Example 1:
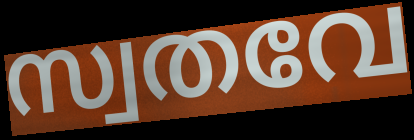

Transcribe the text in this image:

സ്വതവേ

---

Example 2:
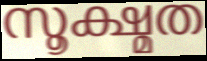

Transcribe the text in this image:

സൂക്ഷ്മത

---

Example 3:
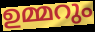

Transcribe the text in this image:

ഉമ്മറും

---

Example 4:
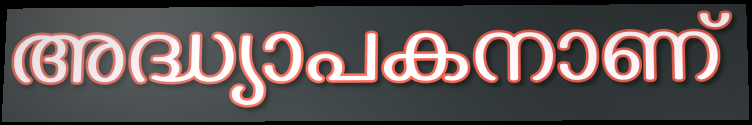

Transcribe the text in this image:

അദ്ധ്യാപകനാണ്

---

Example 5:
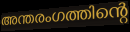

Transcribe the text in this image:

അന്തരംഗത്തിന്റെ